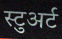
स्टुअर्ट